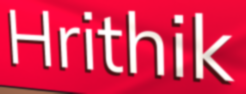
Hrithik